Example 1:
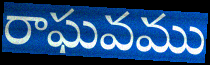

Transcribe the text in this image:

రాఘవము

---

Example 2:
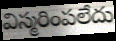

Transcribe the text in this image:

విస్మరింపలేదు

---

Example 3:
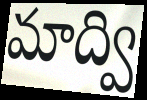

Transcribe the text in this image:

మాద్వి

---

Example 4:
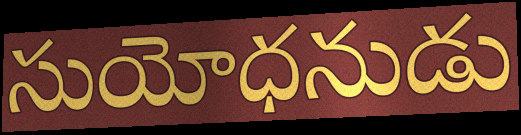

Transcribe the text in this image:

సుయోధనుడు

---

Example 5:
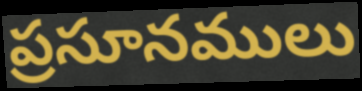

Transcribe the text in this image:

ప్రసూనములు